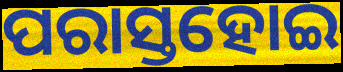
ପରାସ୍ତହୋଇ